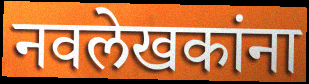
नवलेखकांना